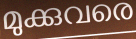
മുക്കുവരെ